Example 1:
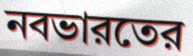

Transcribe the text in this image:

নবভারতের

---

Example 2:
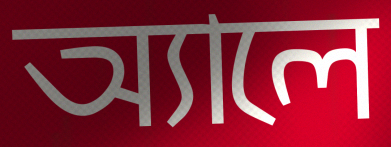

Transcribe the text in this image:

অ্যালে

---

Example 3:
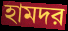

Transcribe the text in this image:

হামদর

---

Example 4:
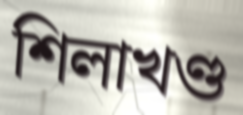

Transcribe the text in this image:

শিলাখণ্ড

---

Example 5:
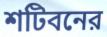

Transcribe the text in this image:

শটিবনের